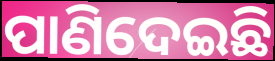
ପାଣିଦେଇଛି